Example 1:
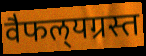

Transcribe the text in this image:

वैफल्यग्रस्त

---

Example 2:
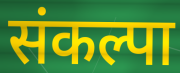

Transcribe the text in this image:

संकल्पा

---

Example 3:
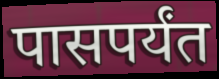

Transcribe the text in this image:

पासपर्यंत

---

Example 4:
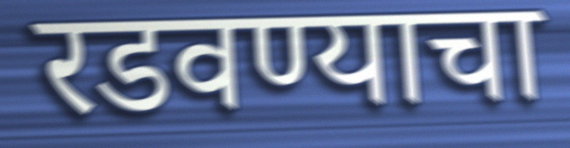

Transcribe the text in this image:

रडवण्याचा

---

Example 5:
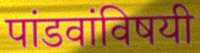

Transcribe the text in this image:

पांडवांविषयी